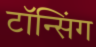
टॉन्सिंग